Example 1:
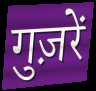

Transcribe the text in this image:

गुज़रें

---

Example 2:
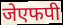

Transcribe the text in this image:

जेएफपी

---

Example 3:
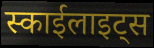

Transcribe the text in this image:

स्काईलाइट्स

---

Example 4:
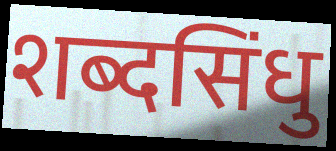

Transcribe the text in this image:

शब्दसिंधु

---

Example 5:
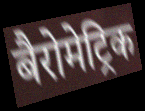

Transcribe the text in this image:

बैरोमेट्रिक